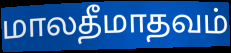
மாலதீமாதவம்